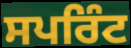
ਸਪਰਿੰਟ